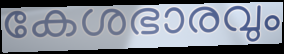
കേശഭാരവും